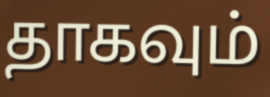
தாகவும்